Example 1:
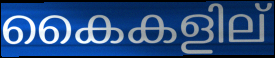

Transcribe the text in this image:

കൈകളില്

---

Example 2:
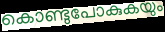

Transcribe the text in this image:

കൊണ്ടുപോകുകയും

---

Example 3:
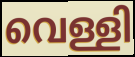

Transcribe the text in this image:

വെള്ളി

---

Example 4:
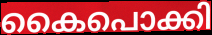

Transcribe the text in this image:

കൈപൊക്കി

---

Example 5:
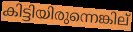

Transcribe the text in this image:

കിട്ടിയിരുന്നെങ്കില്